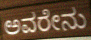
ಅವರೇನು